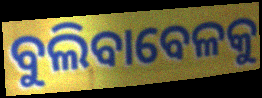
ବୁଲିବାବେଳକୁ